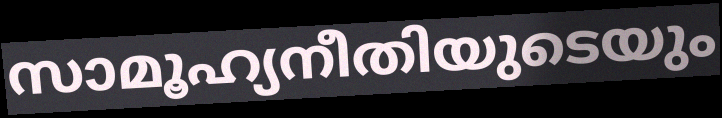
സാമൂഹ്യനീതിയുടെയും